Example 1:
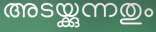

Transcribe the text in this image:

അടയ്ക്കുന്നതും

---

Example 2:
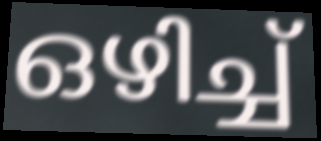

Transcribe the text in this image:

ഒഴിച്ച്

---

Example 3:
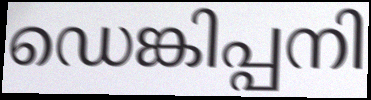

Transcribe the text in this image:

ഡെങ്കിപ്പനി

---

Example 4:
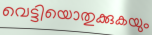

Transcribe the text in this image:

വെട്ടിയൊതുക്കുകയും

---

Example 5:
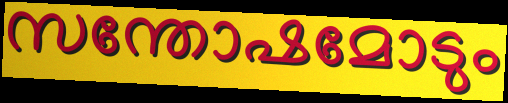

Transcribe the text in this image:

സന്തോഷമോടും